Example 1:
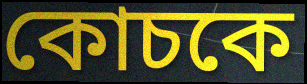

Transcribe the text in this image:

কোচকে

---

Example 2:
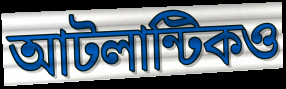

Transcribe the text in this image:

আটলান্টিকও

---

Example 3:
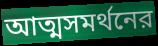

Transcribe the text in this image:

আত্মসমর্থনের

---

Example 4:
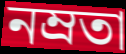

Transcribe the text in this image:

নম্রতা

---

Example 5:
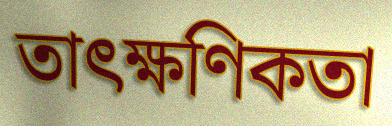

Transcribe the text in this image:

তাৎক্ষণিকতা